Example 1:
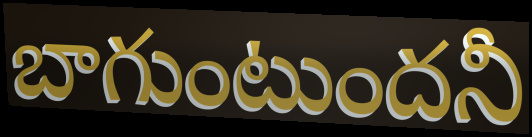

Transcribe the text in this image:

బాగుంటుందనీ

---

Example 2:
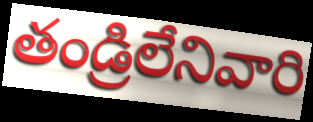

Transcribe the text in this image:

తండ్రిలేనివారి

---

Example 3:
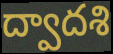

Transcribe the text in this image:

ద్వాదశి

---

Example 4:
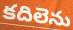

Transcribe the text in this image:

కదిలెను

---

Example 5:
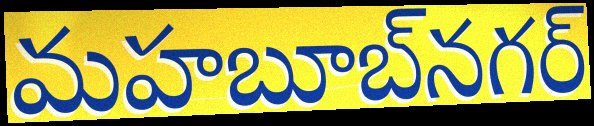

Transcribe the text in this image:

మహబూబ్‌నగర్